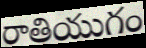
రాతియుగం